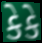
કેકે